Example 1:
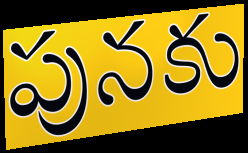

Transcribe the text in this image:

పునకు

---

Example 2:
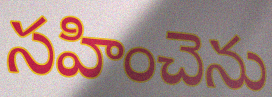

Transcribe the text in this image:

సహించెను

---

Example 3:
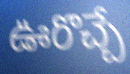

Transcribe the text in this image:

ఊరొచ్చే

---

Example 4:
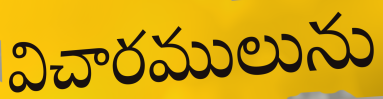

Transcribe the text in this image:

విచారములును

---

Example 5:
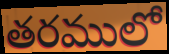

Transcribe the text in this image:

తరములో